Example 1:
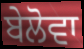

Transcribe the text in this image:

ਬੇਲੋਵਾ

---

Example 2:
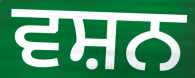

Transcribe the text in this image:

ਵਸ਼ਨ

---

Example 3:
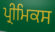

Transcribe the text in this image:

ਪ੍ਰੀਮਿਕਸ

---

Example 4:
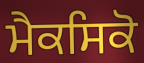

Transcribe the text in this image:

ਮੈਕਸਿਕੋ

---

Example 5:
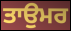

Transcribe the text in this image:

ਤਾਉਮਰ